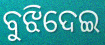
ବୁଝିଦେଇ